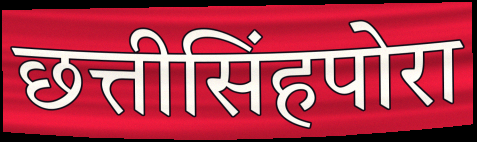
छत्तीसिंहपोरा